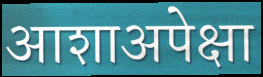
आशाअपेक्षा